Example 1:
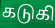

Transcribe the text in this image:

கடுகி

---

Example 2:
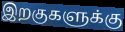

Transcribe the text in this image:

இறகுகளுக்கு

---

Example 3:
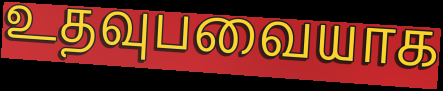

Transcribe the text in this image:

உதவுபவையாக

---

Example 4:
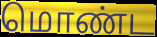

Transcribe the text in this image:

மொண்ட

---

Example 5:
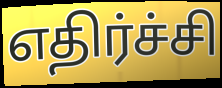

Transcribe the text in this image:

எதிர்ச்சி